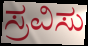
ಸ್ರವಿಸು